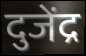
दुजेंद्र